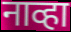
नाव्हा